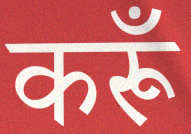
करूँ